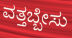
ವತ್ತಬ್ಬೇಸು